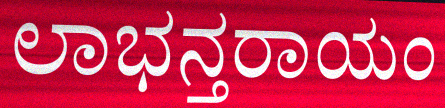
ಲಾಭನ್ತರಾಯಂ